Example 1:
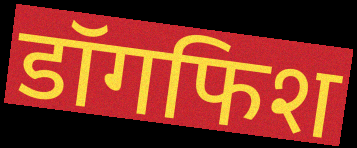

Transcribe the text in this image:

डॉगफिश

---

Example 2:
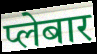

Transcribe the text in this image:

प्लेबार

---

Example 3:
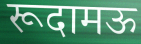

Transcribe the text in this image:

रूदामऊ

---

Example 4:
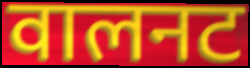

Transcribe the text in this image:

वालनट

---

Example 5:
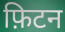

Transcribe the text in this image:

फ़िटन